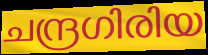
ചന്ദ്രഗിരിയ